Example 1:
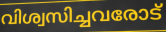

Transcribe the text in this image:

വിശ്വസിച്ചവരോട്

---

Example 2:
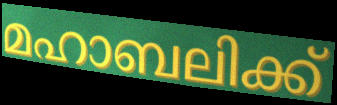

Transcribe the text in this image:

മഹാബലിക്ക്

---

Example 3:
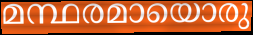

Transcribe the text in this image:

മന്ഥരമായൊരു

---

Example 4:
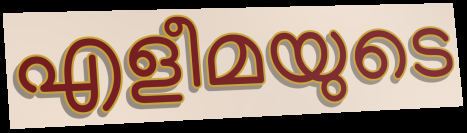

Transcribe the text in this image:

എളീമയുടെ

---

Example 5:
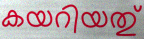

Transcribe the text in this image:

കയറിയതു്